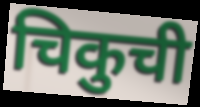
चिकुची